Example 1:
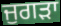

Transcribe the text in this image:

ਜੁਗੜਾ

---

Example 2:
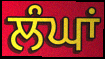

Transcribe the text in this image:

ਲੰਘਾਂ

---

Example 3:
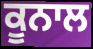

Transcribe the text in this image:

ਕੂਨਾਲ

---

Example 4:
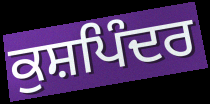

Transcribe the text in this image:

ਕੁਸ਼ਪਿੰਦਰ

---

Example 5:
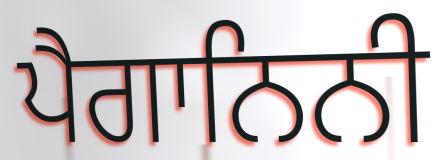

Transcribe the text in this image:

ਪੈਗਾਨਿਨੀ